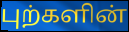
புற்களின்